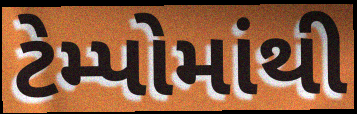
ટેમ્પોમાંથી